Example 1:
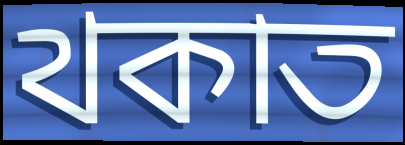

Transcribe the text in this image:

থকাত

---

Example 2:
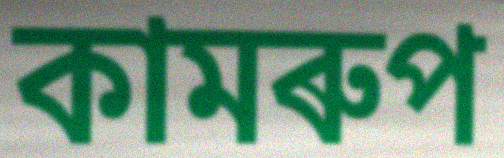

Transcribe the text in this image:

কামৰুপ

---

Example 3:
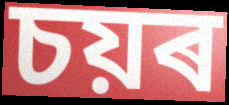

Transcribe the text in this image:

চয়ৰ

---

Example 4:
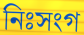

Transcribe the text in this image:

নিঃসংগ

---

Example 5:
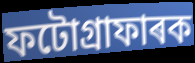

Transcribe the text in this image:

ফটোগ্ৰাফাৰক